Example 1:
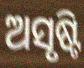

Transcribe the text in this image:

ଅସୃଷ୍ଟି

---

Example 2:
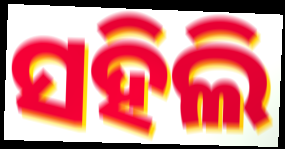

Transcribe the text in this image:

ସହିଲି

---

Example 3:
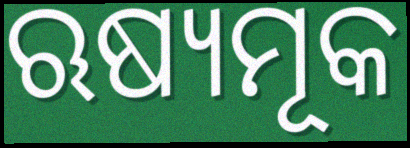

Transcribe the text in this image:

ଋଷ୍ୟମୂକ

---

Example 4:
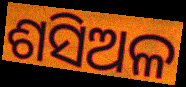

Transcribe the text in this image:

ଶସିଅଳ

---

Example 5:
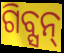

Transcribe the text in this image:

ଗିବ୍ସନ୍